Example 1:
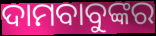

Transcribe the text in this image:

ଦାମବାବୁଙ୍କର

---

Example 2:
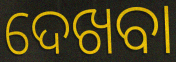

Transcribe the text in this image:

ଦେଖବା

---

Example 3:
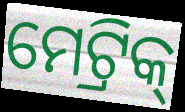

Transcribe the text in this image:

ମେଟ୍ରିକ୍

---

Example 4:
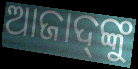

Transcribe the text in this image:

ଆଜାଦ୍‌ଙ୍କୁ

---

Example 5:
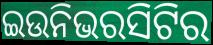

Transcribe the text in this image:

ଇଉନିଭରସିଟିର